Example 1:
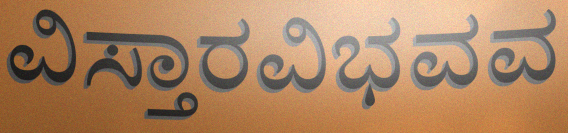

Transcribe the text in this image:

ವಿಸ್ತಾರವಿಭವವ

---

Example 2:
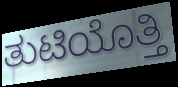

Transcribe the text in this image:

ತುಟಿಯೊತ್ತಿ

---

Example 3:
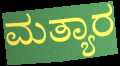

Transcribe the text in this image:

ಮತ್ಯಾರ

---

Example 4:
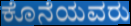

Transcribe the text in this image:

ಕೊನೆಯವರು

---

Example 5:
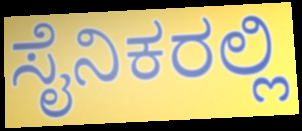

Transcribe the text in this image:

ಸೈನಿಕರಲ್ಲಿ